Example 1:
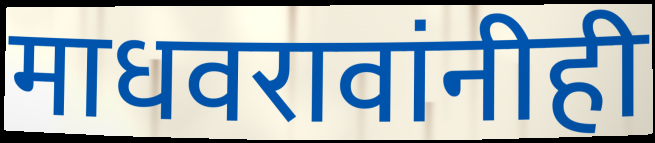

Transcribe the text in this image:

माधवरावांनीही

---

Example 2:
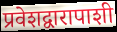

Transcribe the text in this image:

प्रवेशद्वारापाशी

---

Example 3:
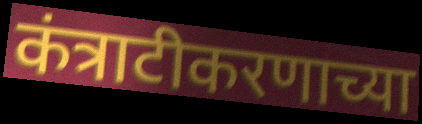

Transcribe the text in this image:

कंत्राटीकरणाच्या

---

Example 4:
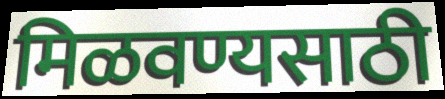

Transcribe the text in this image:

मिळवण्यसाठी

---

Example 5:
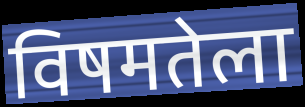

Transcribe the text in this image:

विषमतेला